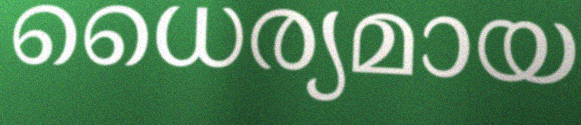
ധൈര്യമായ